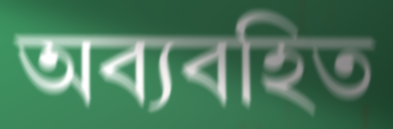
অব্যবহিত